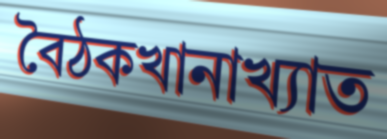
বৈঠকখানাখ্যাত